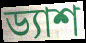
ড্যাশ